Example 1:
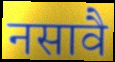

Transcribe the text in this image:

नसावै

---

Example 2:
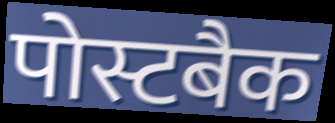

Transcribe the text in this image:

पोस्टबैक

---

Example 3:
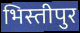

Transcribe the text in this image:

भिस्तीपुर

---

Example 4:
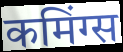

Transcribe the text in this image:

कमिंग्स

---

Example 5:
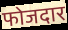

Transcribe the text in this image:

फोजदार